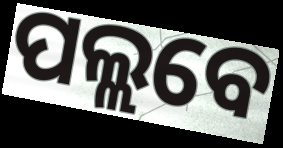
ପଲ୍ଲବେ